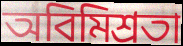
অবিমিশ্রতা